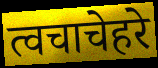
त्वचाचेहरे